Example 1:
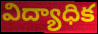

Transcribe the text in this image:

విద్యాధిక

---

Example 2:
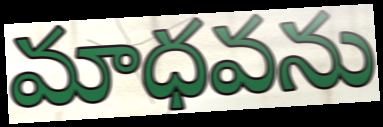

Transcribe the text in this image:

మాధవను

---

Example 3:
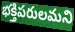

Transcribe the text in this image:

భక్తిపరులమని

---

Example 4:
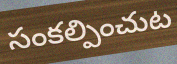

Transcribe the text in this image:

సంకల్పించుట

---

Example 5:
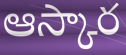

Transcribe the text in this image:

ఆస్కార